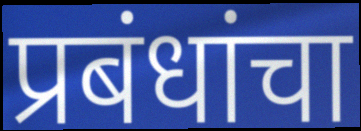
प्रबंधांचा